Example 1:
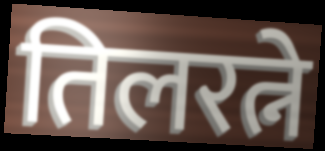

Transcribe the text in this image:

तिलरत्ने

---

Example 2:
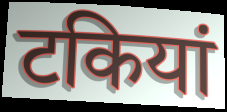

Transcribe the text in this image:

टकियां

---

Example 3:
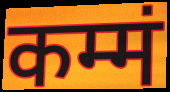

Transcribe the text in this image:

कम्मं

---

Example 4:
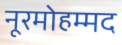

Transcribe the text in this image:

नूरमोहम्मद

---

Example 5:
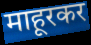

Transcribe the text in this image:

माहूरकर